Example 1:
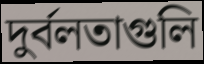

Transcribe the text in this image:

দুর্বলতাগুলি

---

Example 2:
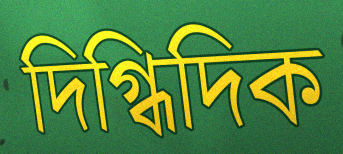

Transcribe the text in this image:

দিগ্ধিদিক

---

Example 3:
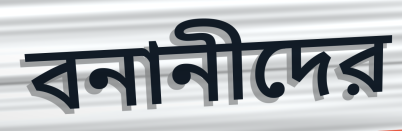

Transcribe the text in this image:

বনানীদের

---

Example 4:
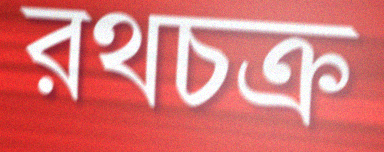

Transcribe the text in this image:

রথচক্র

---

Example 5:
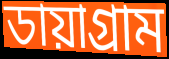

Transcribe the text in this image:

ডায়াগ্রাম